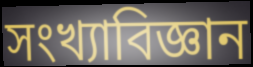
সংখ্যাবিজ্ঞান